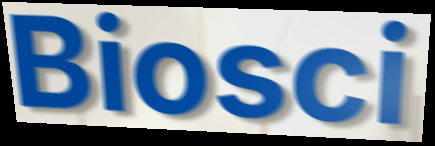
Biosci